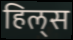
हिल्स